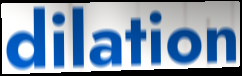
dilation